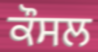
ਕੌਸਲ